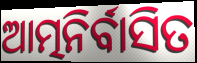
ଆତ୍ମନିର୍ବାସିତ